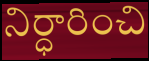
నిర్ధారించి